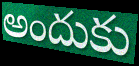
అందుకు